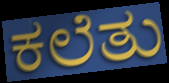
ಕಲೆತು